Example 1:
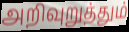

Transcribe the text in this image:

அறிவுறுத்தும்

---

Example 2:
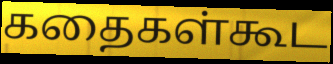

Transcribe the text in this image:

கதைகள்கூட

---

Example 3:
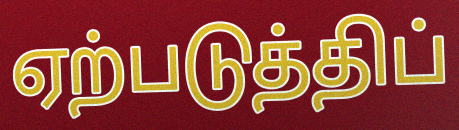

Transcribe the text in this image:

ஏற்படுத்திப்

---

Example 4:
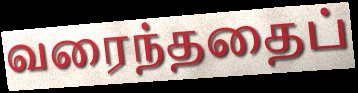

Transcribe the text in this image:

வரைந்ததைப்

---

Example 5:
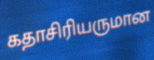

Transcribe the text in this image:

கதாசிரியருமான